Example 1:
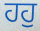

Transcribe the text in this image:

ਹਹੁ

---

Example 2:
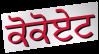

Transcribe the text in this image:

ਕੋਕੋਏਟ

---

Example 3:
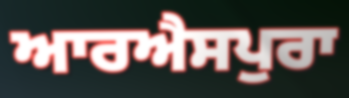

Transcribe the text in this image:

ਆਰਐਸਪੁਰਾ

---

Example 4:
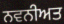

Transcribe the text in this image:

ਨਵਨੀਅਤ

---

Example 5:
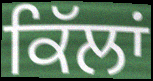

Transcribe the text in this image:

ਕਿੱਲਾਂ